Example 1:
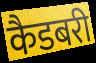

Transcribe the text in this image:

कैडबरी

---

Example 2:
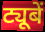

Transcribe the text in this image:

ट्यूबें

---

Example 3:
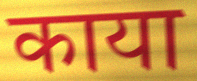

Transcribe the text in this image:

काया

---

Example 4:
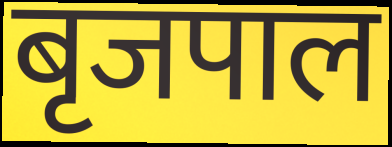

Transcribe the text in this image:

बृजपाल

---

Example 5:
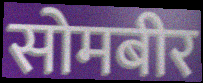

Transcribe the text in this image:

सोमबीर